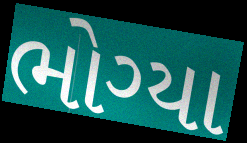
ભોગ્યા